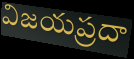
విజయప్రదా